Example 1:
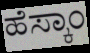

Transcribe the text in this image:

ಹೆಸ್ಕಾಂ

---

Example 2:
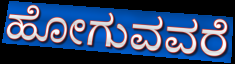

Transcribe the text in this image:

ಹೋಗುವವರೆ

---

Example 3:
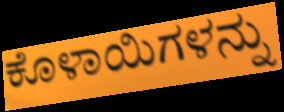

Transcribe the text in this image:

ಕೊಳಾಯಿಗಳನ್ನು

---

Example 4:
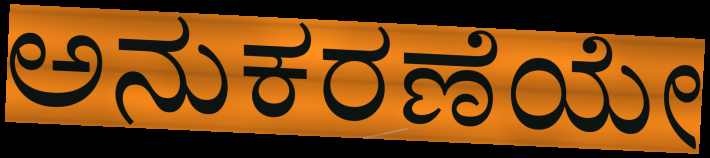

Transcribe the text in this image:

ಅನುಕರಣೆಯೇ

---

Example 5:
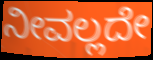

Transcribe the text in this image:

ನೀವಲ್ಲದೇ